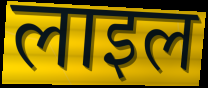
लाइल